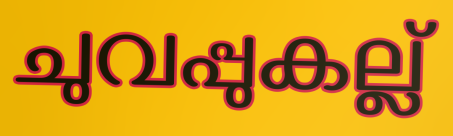
ചുവപ്പുകല്ല്